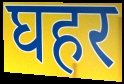
घहर